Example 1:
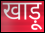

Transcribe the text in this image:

खाड़ू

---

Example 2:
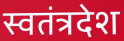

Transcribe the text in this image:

स्वतंत्रदेश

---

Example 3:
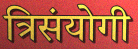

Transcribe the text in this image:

त्रिसंयोगी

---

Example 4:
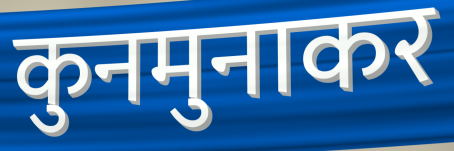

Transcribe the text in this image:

कुनमुनाकर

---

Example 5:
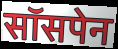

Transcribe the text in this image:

सॉसपेन